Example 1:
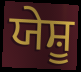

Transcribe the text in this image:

ਯੇਸ਼ੂ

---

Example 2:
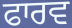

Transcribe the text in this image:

ਫਾਰਵ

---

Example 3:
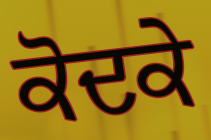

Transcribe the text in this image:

ਕੋਦਕੇ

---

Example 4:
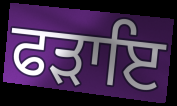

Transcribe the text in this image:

ਫੜਾਇ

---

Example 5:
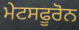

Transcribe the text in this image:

ਮੇਟਸਫੂਰੋਨ